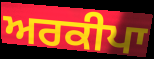
ਅਰਕੀਪਾ